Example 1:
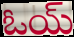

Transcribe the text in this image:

ఓయ్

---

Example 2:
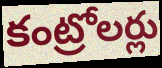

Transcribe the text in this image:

కంట్రోలర్లు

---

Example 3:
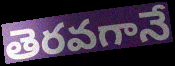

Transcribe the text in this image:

తెరవగానే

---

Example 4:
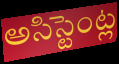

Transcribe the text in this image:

అసిస్టెంట్ల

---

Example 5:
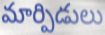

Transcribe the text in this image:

మార్పిడులు